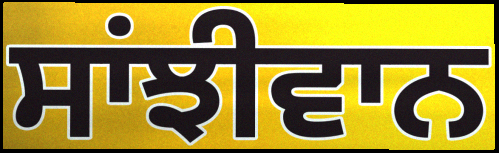
ਸਾਂਝੀਵਾਨ